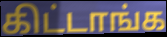
கிட்டாங்க